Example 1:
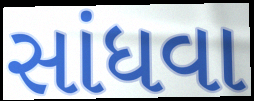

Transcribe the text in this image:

સાંધવા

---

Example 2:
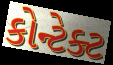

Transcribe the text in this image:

કોન્ટેક્ટ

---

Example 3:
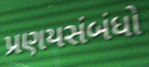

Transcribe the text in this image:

પ્રણયસંબંધો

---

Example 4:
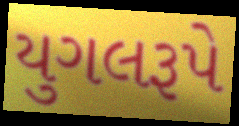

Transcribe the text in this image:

યુગલરૂપે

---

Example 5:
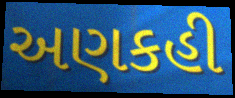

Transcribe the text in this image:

અણકહી